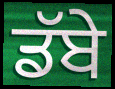
ਡੱਬੇ